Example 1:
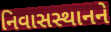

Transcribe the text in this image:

નિવાસસ્થાનને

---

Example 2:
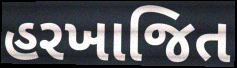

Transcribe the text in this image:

હરખાજિત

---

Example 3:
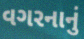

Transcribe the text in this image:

વગરનાનું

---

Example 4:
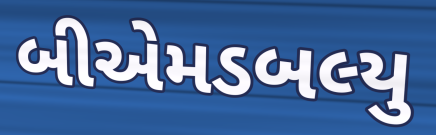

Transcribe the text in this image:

બીએમડબલ્યુ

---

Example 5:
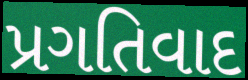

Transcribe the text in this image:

પ્રગતિવાદ